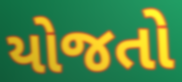
યોજતો